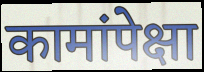
कामांपेक्षा